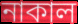
নাকাল